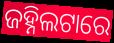
ଜହ୍ନିଲଟାରେ